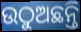
ଉଠୁଅଛନ୍ତି